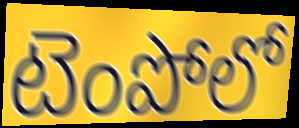
టెంపోలో